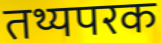
तथ्यपरक